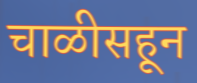
चाळीसहून